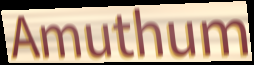
Amuthum